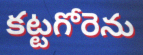
కట్టగోరెను